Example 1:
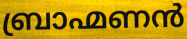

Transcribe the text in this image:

ബ്രാഹ്മണൻ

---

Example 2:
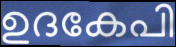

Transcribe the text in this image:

ഉദകേപി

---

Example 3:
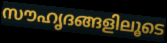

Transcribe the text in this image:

സൗഹൃദങ്ങളിലൂടെ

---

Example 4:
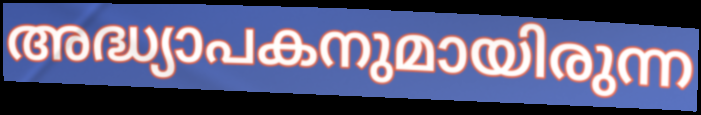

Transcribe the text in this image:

അദ്ധ്യാപകനുമായിരുന്ന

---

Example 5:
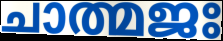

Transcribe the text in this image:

ചാത്മജഃ